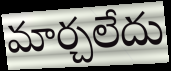
మార్చలేదు